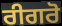
ਰੀਗਰੋ